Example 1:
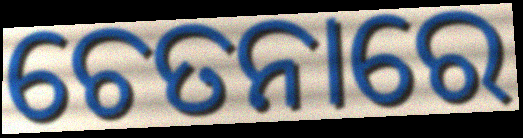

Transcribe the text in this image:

ଚେତନାରେ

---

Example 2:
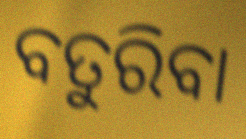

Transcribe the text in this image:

ବତୁରିବା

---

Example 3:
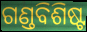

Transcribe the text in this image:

ଗଣ୍ଡବିଶିଷ୍ଟ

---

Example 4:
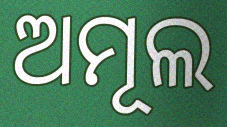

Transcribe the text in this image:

ଅମୂଲ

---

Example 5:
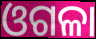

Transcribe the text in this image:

ଓଗଳା